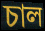
চাল